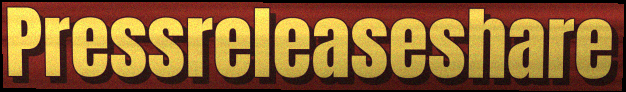
Pressreleaseshare